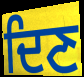
ਦਿਣ